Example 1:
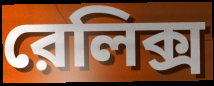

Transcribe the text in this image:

রেলিক্স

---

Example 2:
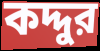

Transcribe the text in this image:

কদ্দুর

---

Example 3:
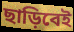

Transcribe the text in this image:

ছাড়িবেই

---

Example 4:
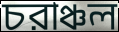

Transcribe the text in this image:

চরাঞ্চল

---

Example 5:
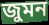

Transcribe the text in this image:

জুমন